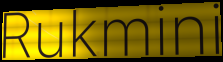
Rukmini